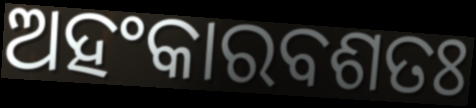
ଅହଂକାରବଶତଃ